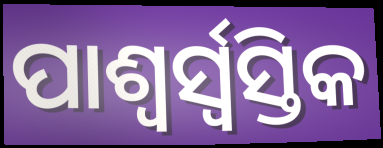
ପାଶ୍ୱର୍ସ୍ୱସ୍ତିକ